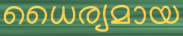
ധൈര്യമായ